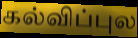
கல்விப்புல